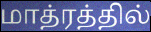
மாத்ரத்தில்